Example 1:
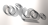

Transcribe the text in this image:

യീശും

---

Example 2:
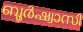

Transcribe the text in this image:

ബൂർഷ്വാസി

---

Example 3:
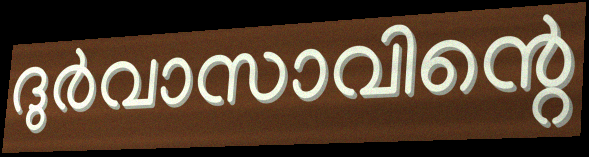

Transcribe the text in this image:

ദുർവാസാവിന്റെ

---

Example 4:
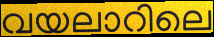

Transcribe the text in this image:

വയലാറിലെ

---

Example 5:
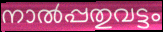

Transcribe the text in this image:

നാൽപ്പതുവട്ടം